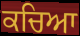
ਕਚਿਆ